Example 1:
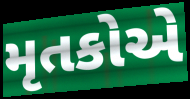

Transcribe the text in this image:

મૃતકોએ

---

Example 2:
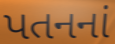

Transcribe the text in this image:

પતનનાં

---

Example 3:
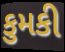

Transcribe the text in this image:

કુમકી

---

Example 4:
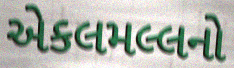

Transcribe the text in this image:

એકલમલ્લનો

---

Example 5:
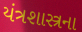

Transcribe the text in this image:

યંત્રશાસ્ત્રના